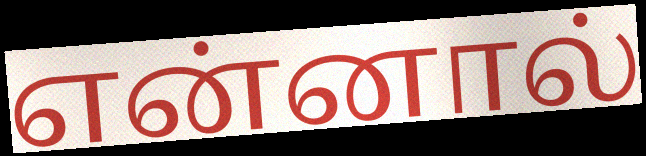
என்னால்